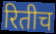
रितीच